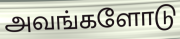
அவங்களோடு